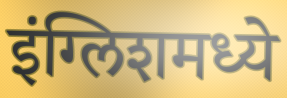
इंग्लिशमध्ये